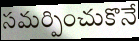
సమర్పించుకొనే